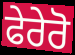
ਫੇਰੇਰੋ